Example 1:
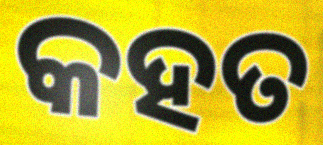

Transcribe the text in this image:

କହତ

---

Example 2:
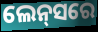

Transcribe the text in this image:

ଲେନ୍‌ସରେ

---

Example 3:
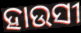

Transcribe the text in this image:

ହାଉସୀ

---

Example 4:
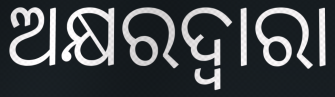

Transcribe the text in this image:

ଅକ୍ଷରଦ୍ଵାରା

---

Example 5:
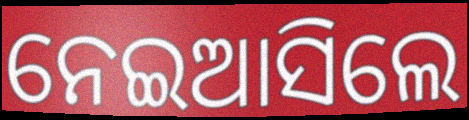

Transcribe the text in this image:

ନେଇଆସିଲେ